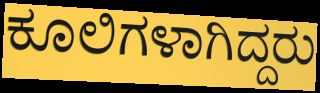
ಕೂಲಿಗಳಾಗಿದ್ದರು